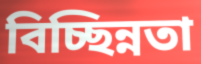
বিচ্ছিন্নতা